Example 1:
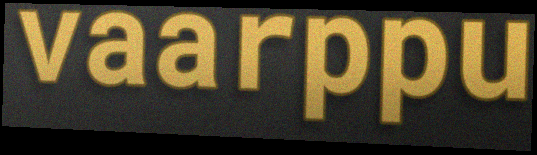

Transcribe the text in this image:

vaarppu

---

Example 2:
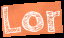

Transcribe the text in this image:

Lor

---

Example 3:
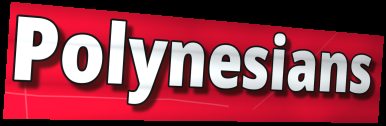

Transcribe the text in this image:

Polynesians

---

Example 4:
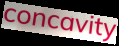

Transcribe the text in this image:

concavity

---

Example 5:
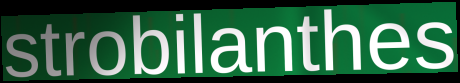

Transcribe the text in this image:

strobilanthes